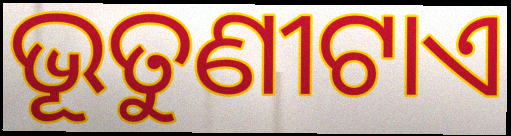
ଭୂତୁଣୀଟାଏ